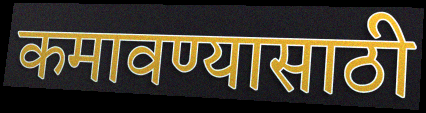
कमावण्यासाठी